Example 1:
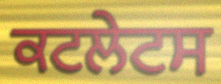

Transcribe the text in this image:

ਕਟਲੇਟਸ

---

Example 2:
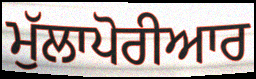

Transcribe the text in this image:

ਮੁੱਲਾਪੋਰੀਆਰ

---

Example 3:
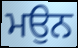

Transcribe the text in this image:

ਮਉਨ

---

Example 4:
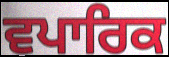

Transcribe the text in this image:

ਵਪਾਰਿਕ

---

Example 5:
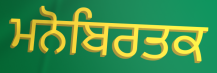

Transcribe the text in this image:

ਮਨੋਬਿਰਤਕ